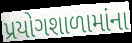
પ્રયોગશાળામાંના